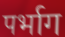
पर्भाग